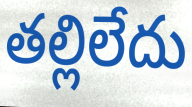
తల్లిలేదు